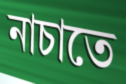
নাচাতে